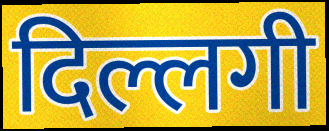
दिल्‍लगी